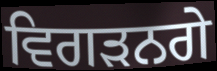
ਵਿਗੜਨਗੇ